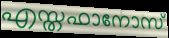
എസ്തഫാനോസ്